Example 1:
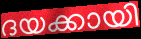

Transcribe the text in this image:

ദയക്കായി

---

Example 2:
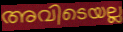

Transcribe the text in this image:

അവിടെയല്ല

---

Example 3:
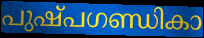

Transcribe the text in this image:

പുഷ്പഗണ്ഡികാ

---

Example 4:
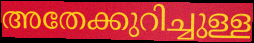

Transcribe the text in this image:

അതേക്കുറിച്ചുള്ള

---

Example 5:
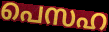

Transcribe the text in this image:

പെസഹ